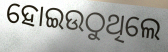
ହୋଇଉଠୁଥିଲେ